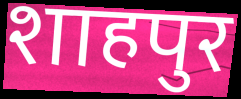
शाहपुर